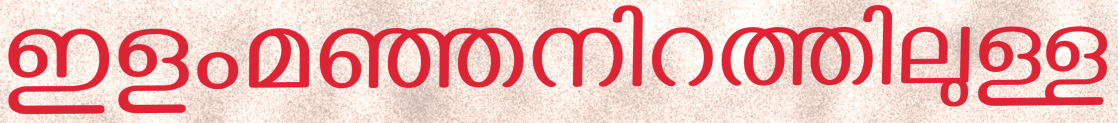
ഇളംമഞ്ഞനിറത്തിലുള്ള